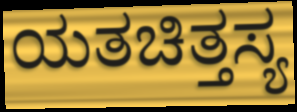
ಯತಚಿತ್ತಸ್ಯ